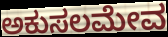
ಅಕುಸಲಮೇವ